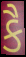
કૈ